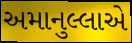
અમાનુલ્લાએ